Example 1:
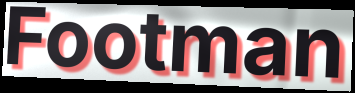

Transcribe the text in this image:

Footman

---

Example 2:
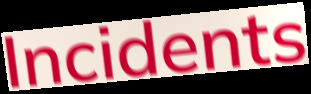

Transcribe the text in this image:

Incidents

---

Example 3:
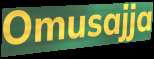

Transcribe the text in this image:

Omusajja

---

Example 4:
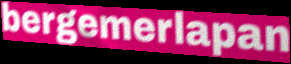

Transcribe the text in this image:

bergemerlapan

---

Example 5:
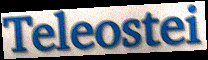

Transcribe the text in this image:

Teleostei